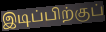
இடிப்பிற்குப்